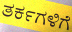
ತರ್ಕಗಳಿಗೆ